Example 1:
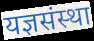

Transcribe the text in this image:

यज्ञसंस्था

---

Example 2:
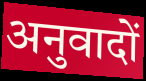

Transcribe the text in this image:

अनुवादों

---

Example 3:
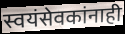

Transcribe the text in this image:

स्वयंसेवकांनाही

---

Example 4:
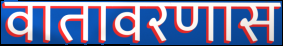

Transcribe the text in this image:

वातावरणास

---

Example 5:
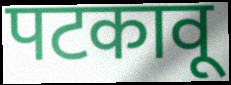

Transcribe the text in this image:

पटकावू